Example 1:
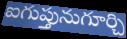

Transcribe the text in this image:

ఐగుప్తునుగూర్చి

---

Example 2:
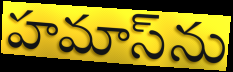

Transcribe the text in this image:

హమాస్‌ను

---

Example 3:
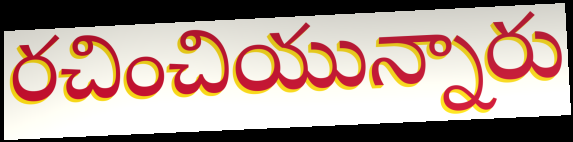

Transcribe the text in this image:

రచించియున్నారు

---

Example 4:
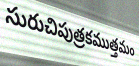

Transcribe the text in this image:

సురుచిపుత్రకముత్తమం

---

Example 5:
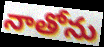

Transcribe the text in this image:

నాతోను